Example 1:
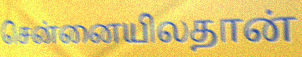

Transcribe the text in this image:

சென்னையிலதான்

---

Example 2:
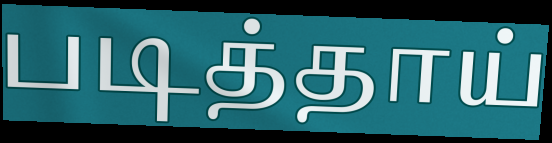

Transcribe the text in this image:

படித்தாய்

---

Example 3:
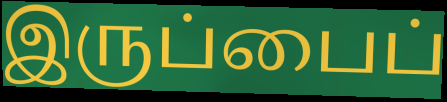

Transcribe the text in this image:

இருப்பைப்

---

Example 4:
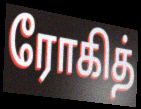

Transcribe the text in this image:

ரோகித்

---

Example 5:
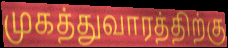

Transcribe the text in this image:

முகத்துவாரத்திற்கு